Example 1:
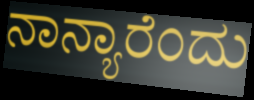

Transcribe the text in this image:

ನಾನ್ಯಾರೆಂದು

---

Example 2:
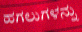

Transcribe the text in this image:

ಹಗಲುಗಳನ್ನು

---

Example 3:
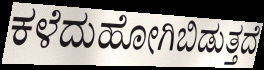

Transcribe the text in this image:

ಕಳೆದುಹೋಗಿಬಿಡುತ್ತದೆ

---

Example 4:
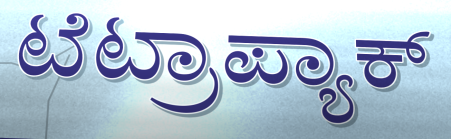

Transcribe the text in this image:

ಟೆಟ್ರಾಪ್ಯಾಕ್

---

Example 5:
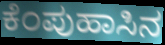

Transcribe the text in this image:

ಕೆಂಪುಹಾಸಿನ